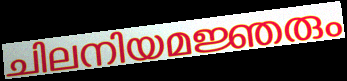
ചിലനിയമജ്ഞരും